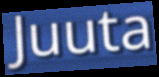
Juuta